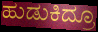
ಹುಡುಕಿದ್ರೂ